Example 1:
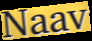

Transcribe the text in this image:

Naav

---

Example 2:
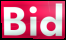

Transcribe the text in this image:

Bid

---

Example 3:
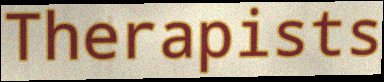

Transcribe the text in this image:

Therapists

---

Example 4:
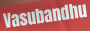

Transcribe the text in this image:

Vasubandhu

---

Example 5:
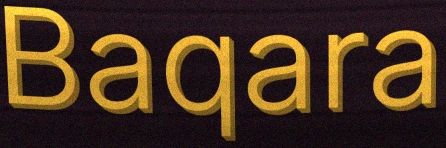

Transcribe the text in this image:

Baqara